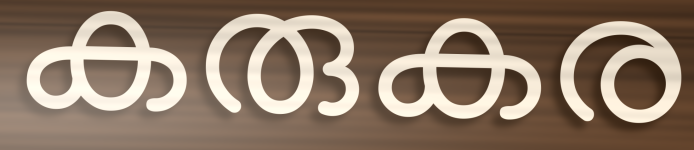
കരുകര